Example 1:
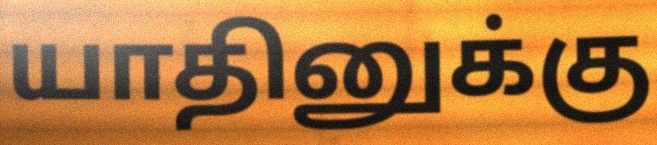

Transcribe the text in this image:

யாதினுக்கு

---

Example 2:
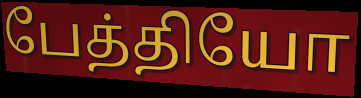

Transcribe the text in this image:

பேத்தியோ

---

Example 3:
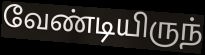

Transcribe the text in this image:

வேண்டியிருந்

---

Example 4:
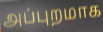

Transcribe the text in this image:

அப்புறமாக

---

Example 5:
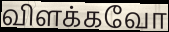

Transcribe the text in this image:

விளக்கவோ